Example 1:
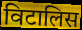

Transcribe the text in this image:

विटालिस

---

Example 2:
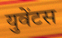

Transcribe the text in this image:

युवेंटस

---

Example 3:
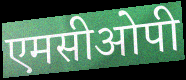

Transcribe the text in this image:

एमसीओपी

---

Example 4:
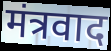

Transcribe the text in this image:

मंत्रवाद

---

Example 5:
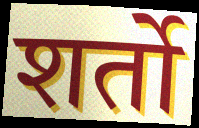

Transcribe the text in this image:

शर्तो